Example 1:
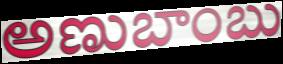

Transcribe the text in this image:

అణుబాంబు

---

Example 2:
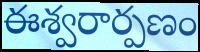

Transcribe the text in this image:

ఈశ్వరార్పణం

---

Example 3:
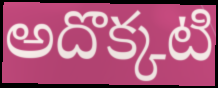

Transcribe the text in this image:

అదొక్కటి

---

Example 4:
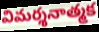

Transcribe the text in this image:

విమర్శనాత్మక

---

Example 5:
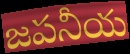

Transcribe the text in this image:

జపనీయ